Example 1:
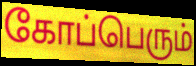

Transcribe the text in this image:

கோப்பெரும்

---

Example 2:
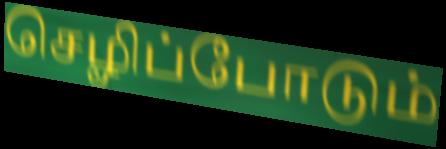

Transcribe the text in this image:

செழிப்போடும்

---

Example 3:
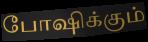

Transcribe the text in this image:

போஷிக்கும்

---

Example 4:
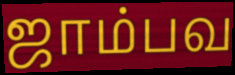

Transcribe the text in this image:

ஜாம்பவ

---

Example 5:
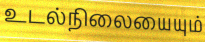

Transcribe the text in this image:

உடல்நிலையையும்